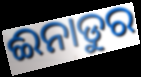
ଈନାଡୁର